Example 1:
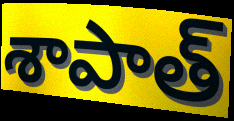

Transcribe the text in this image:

శాపాత్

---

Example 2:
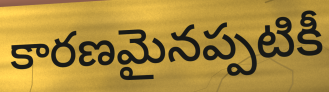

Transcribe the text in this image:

కారణమైనప్పటికీ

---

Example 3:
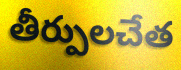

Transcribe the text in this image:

తీర్పులచేత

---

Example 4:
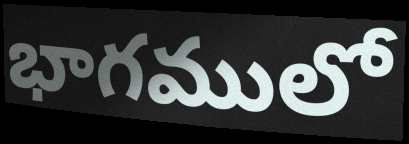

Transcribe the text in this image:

భాగములో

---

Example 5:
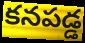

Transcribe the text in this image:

కనపడ్డ